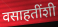
वसाहतींशी